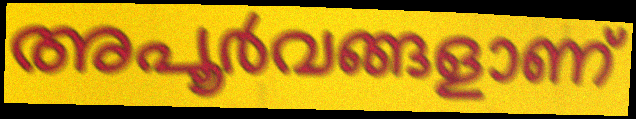
അപൂർവങ്ങളാണ്